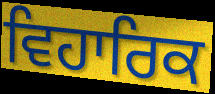
ਵਿਹਾਰਿਕ